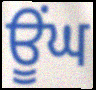
ਊਂਘ